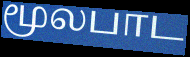
மூலபாட